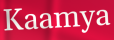
Kaamya